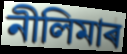
নীলিমাৰ